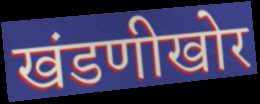
खंडणीखोर